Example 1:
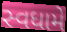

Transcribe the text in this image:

સ્વધામે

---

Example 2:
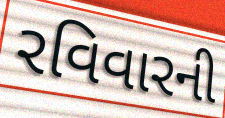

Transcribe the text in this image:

રવિવારની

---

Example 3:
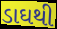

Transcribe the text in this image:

ડાઘથી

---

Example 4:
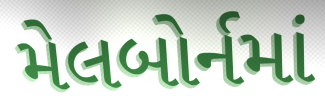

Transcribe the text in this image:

મેલબોર્નમાં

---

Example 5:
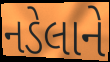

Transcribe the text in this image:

નડેલાને